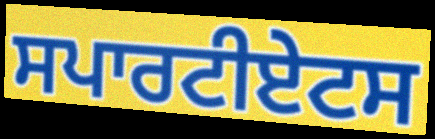
ਸਪਾਰਟੀਏਟਸ